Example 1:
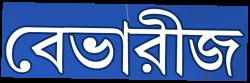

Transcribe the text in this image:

বেভারীজ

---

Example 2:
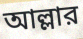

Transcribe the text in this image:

আল্লার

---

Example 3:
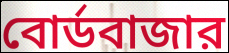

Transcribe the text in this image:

বোর্ডবাজার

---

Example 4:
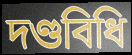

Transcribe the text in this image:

দণ্ডবিধি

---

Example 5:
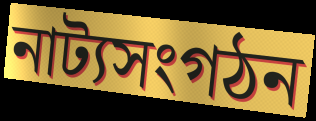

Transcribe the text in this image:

নাট্যসংগঠন